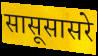
सासूसासरे